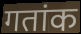
गतांक